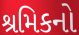
શ્રમિકનો